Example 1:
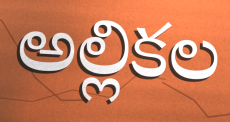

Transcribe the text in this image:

అల్లికల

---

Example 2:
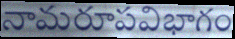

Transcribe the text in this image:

నామరూపవిభాగం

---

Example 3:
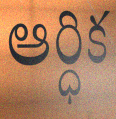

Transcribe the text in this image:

ఆర్ధిక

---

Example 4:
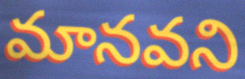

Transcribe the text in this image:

మానవని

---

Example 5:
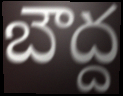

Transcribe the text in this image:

బౌద్ద